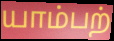
யாம்பற்